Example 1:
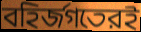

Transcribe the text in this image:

বহির্জগতেরই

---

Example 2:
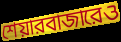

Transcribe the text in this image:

শেয়ারবাজারেও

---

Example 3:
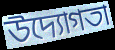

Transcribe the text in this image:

উদ্যোগতা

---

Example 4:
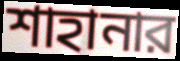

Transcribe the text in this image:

শাহানার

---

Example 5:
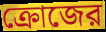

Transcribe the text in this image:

ক্রোজের